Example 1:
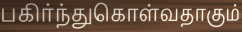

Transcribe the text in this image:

பகிர்ந்துகொள்வதாகும்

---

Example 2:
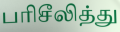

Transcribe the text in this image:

பரிசீலித்து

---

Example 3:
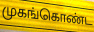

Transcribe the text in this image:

முகங்கொண்ட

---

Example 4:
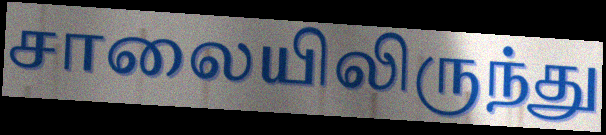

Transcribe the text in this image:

சாலையிலிருந்து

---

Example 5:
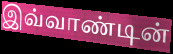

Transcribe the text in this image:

இவ்வாண்டின்